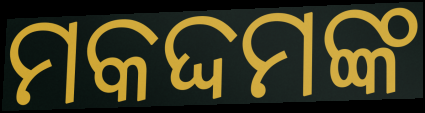
ମକଦ୍ଦମଙ୍କ